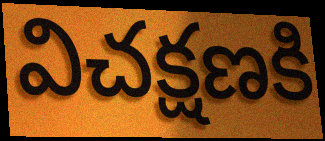
విచక్షణకి